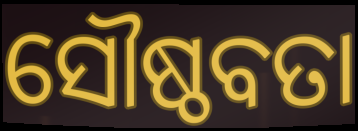
ସୌଷ୍ଠବତା